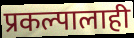
प्रकल्पालाही